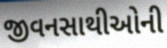
જીવનસાથીઓની